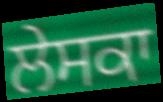
ਲੇਸਕਾ